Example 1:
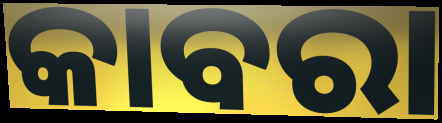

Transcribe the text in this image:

କାବରା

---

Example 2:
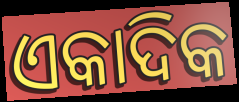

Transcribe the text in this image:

ଏକାଦିକ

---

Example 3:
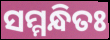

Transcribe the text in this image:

ସମ୍ମନ୍ଧିତଃ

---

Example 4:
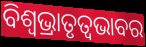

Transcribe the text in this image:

ବିଶ୍ଵଭ୍ରାତୃତ୍ୱଭାବର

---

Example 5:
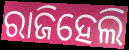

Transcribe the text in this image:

ରାଜିହେଲି